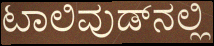
ಟಾಲಿವುಡ್‌ನಲ್ಲಿ